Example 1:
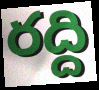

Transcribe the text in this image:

రద్ది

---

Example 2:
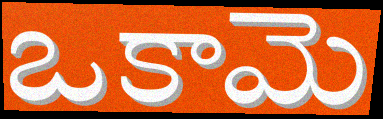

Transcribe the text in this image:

ఒకామె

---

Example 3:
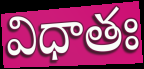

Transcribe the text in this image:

విధాతః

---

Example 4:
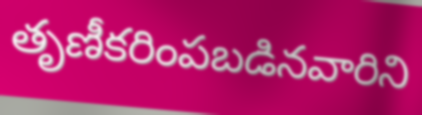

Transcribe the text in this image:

తృణీకరింపబడినవారిని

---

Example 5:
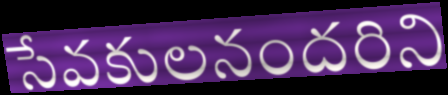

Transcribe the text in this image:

సేవకులనందరిని